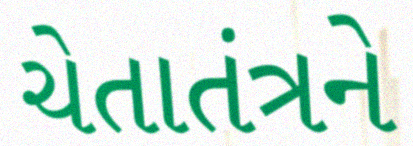
ચેતાતંત્રને